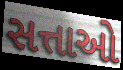
સત્તાઓ